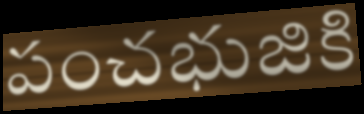
పంచభుజికి